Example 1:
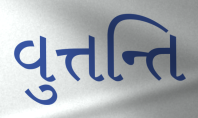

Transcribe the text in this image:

વુત્તન્તિ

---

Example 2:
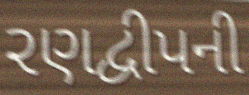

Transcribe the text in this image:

રણદ્વીપની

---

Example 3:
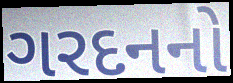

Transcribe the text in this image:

ગરદનનો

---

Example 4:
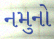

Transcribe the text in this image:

નમુનો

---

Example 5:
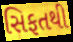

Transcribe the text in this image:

સિફતથી